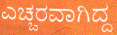
ಎಚ್ಚರವಾಗಿದ್ದ